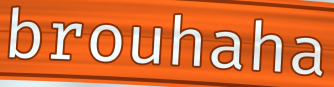
brouhaha